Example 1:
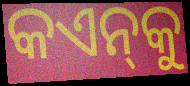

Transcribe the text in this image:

କଏନ୍‌କୁ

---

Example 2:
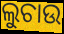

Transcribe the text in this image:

ଲୁଚାଉ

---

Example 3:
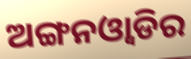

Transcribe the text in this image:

ଅଙ୍ଗନଓ୍ବାଡିର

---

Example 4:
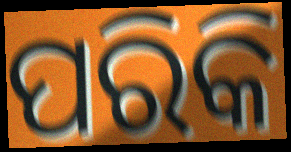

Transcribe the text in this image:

ପରିକି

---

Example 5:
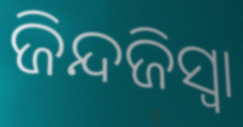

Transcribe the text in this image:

ଜିନ୍ଦଜିସ୍ୱା